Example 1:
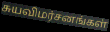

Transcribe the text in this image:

சுயவிமர்சனங்கள்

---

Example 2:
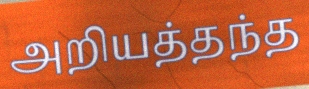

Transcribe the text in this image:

அறியத்தந்த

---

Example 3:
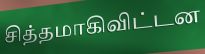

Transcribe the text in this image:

சித்தமாகிவிட்டன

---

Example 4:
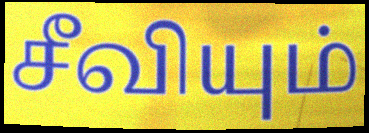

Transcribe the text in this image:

சீவியும்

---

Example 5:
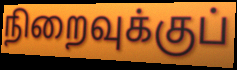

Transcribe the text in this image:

நிறைவுக்குப்